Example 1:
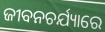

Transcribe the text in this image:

ଜୀବନଚର୍ଯ୍ୟାରେ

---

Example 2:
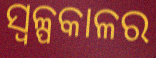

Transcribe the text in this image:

ସ୍ୱଳ୍ପକାଳର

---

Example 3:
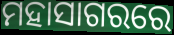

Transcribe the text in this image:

ମହାସାଗରରେ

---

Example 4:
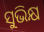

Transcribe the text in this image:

ସୁଭିକ୍ଷ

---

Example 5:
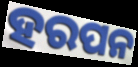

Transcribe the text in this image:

ହରପନ